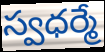
స్వధర్మే